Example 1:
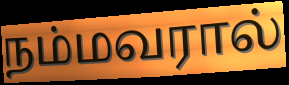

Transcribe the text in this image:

நம்மவரால்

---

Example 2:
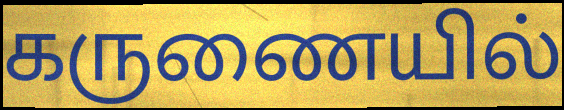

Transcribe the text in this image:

கருணையில்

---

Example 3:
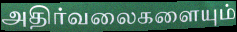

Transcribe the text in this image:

அதிர்வலைகளையும்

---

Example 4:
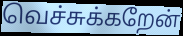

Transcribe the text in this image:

வெச்சுக்கறேன்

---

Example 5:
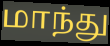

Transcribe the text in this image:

மாந்து